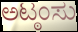
ಅಟ್ಠಂಸು